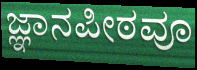
ಜ್ಞಾನಪೀಠವೂ